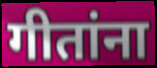
गीतांना